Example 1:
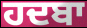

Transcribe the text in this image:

ਹਦਬਾ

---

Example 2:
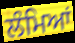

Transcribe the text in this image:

ਲੰਮਿਆਂ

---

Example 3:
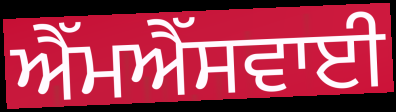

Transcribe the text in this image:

ਐੱਮਐੱਸਵਾਈ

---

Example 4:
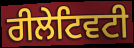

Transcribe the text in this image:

ਰੀਲੇਟਿਵਟੀ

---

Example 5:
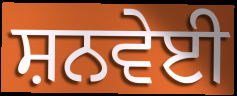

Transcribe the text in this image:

ਸ਼ਨਵੇਈ